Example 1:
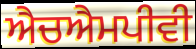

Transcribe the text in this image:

ਐਚਐਮਪੀਵੀ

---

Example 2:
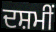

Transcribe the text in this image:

ਦਸ਼ਮੀਂ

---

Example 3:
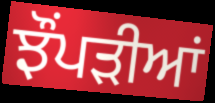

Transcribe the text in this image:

ਝੌਂਪੜੀਆਂ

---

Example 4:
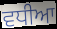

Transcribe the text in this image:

ਵਧੀਆ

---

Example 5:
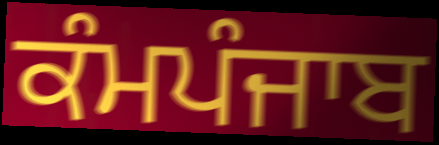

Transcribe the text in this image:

ਕੰਮਪੰਜਾਬ